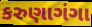
કરુણાગંગા